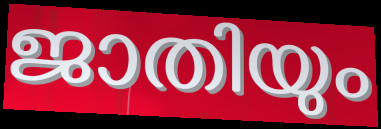
ജാതിയും